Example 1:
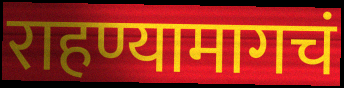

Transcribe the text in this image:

राहण्यामागचं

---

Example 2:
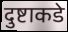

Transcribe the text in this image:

दुष्टाकडे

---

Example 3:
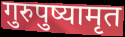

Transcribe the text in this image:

गुरुपुष्यामृत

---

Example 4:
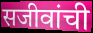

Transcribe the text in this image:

सजीवांची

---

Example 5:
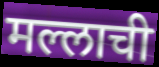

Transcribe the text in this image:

मल्लाची